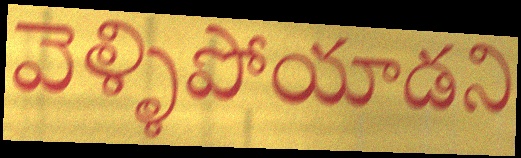
వెళ్ళిపోయాడని